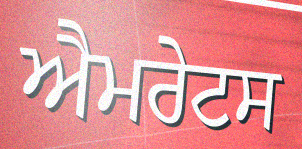
ਐਮਰੇਟਸ